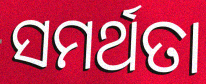
ସମର୍ଥତା